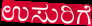
ಉಸುರಿಗೆ